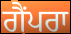
ਗੈਂਪਰਾ